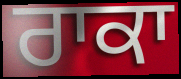
ਰਾਕਾ